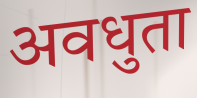
अवधुता